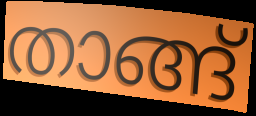
താങ്ങ്